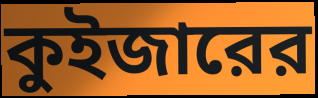
কুইজারের